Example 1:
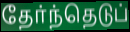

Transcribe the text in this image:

தேர்ந்தெடுப்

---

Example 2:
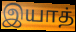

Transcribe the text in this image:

இயாத்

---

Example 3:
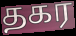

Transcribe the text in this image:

தகர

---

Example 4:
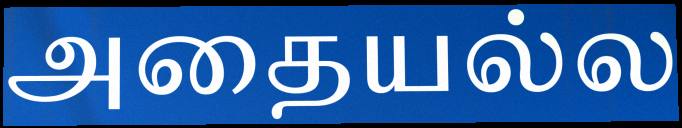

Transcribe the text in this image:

அதையல்ல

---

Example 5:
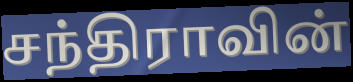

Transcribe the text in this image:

சந்திராவின்